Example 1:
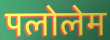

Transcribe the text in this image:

पलोलेम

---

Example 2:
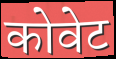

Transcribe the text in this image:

कोवेट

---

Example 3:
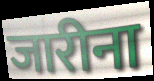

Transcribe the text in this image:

जारीना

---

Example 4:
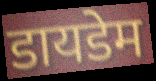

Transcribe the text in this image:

डायडेम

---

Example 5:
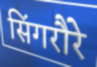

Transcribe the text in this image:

सिंगरौरे